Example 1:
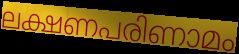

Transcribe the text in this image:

ലക്ഷണപരിണാമം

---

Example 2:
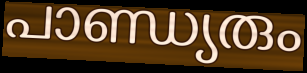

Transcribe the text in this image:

പാണ്ഡ്യരും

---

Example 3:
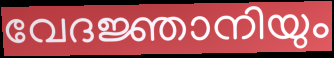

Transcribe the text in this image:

വേദജ്ഞാനിയും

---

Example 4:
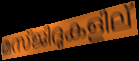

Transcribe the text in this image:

മസ്ജിദുകളില്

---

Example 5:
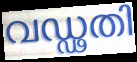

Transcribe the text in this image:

വഡ്ഢതി